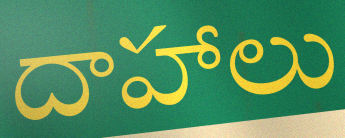
దాహాలు